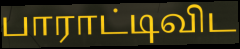
பாராட்டிவிட